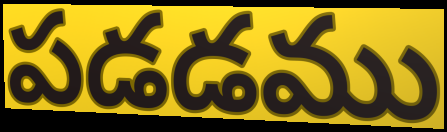
పడడము